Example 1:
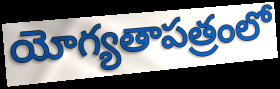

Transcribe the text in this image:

యోగ్యతాపత్రంలో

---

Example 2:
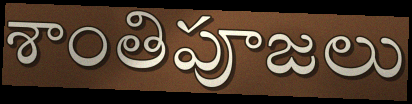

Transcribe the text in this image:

శాంతిపూజలు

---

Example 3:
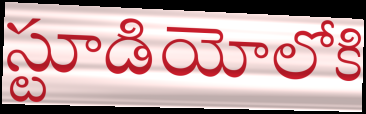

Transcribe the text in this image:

స్టూడియోలోకి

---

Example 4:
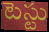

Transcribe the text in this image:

టెస్టు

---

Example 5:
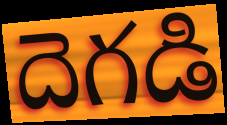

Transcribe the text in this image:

దెగడి